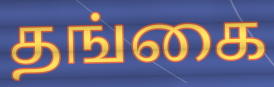
தங்கை